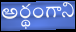
అర్థంగాని